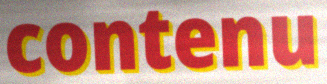
contenu